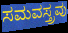
ಸಮವಸ್ತ್ರವು